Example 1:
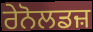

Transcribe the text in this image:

ਰੇਨੋਲਡਜ਼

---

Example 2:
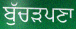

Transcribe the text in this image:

ਬੁੱਚੜਪਣਾ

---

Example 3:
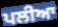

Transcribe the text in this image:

ਪਲੀਆ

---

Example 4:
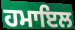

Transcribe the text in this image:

ਹਮਾਇਲ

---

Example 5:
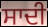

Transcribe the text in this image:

ਸਾਦੀ